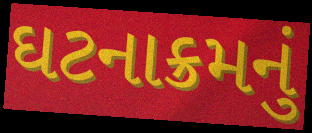
ઘટનાક્રમનું